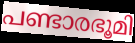
പണ്ടാരഭൂമി